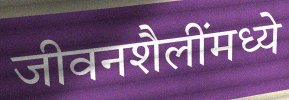
जीवनशैलींमध्ये